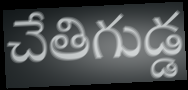
చేతిగుడ్డ